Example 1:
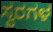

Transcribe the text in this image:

ಸ್ವರಗಳ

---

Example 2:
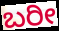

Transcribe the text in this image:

ಬರೀ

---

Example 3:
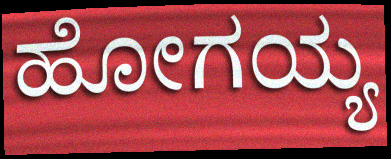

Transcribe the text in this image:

ಹೋಗಯ್ಯ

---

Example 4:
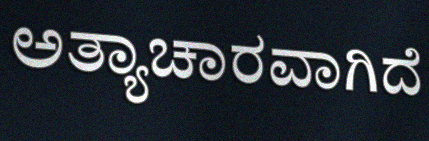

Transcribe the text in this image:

ಅತ್ಯಾಚಾರವಾಗಿದೆ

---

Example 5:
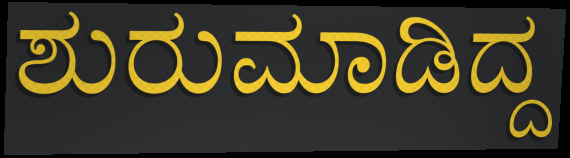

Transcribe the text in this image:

ಶುರುಮಾಡಿದ್ದ